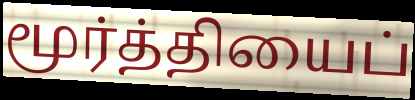
மூர்த்தியைப்